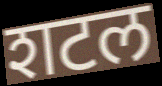
शटल